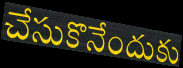
చేసుకొనేందుకు